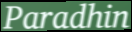
Paradhin